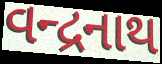
વન્દ્રનાથ